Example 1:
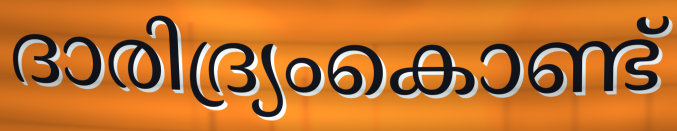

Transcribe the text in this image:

ദാരിദ്ര്യംകൊണ്ട്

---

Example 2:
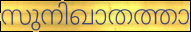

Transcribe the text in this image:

സുനിഖാതത്താ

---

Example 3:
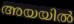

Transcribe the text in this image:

അയയിൽ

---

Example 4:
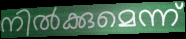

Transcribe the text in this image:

നിൽക്കുമെന്ന്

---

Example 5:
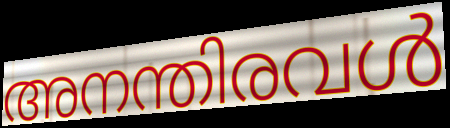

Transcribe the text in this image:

അനന്തിരവൾ